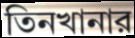
তিনখানার